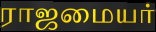
ராஜமையர்